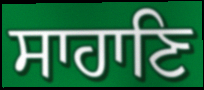
ਸਾਹਾਣਿ